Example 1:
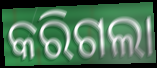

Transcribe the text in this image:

କରିଗଲା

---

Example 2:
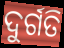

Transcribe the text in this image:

ଦୁର୍ଗତି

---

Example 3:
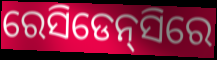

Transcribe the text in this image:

ରେସିଡେନ୍‌ସିରେ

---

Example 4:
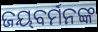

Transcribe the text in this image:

ଜୟବର୍ମନଙ୍କ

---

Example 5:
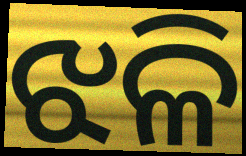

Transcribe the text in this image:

ଝଳି